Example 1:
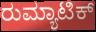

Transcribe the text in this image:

ರುಮ್ಯಾಟಿಕ್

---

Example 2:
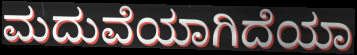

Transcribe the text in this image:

ಮದುವೆಯಾಗಿದೆಯಾ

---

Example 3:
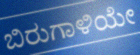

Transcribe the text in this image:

ಬಿರುಗಾಳಿಯೇ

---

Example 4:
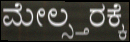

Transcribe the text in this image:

ಮೇಲ್ಸ್ತರಕ್ಕೆ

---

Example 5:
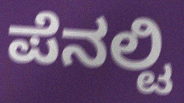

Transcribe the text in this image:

ಪೆನಲ್ಟಿ